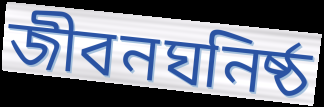
জীবনঘনিষ্ঠ